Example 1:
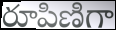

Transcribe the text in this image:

రూపిణిగా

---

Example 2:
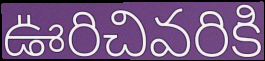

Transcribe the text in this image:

ఊరిచివరికి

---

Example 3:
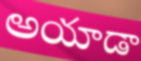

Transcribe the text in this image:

అయాడా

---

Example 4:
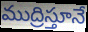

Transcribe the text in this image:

ముద్రిస్తూనే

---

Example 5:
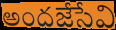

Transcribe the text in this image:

అందజేసేవి